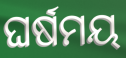
ଘର୍ଷମୟ